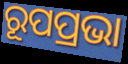
ରୂପପ୍ରଭା